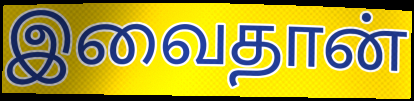
இவைதான்